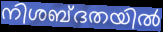
നിശബ്ദതയിൽ